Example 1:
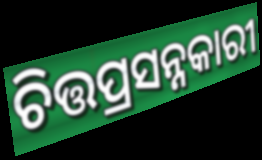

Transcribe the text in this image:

ଚିତ୍ତପ୍ରସନ୍ନକାରୀ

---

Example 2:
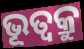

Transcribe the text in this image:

ଭୂତ୍ଵକ୍ରୁ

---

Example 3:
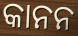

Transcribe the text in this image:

କାନନ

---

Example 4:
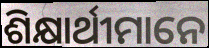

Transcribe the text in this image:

ଶିକ୍ଷାର୍ଥୀମାନେ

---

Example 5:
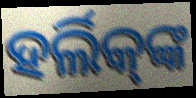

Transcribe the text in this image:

ହର୍ଲିକ୍‌ଙ୍କ